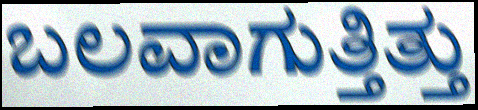
ಬಲವಾಗುತ್ತಿತ್ತು